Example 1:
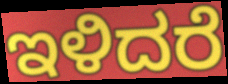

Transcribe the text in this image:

ಇಳಿದರೆ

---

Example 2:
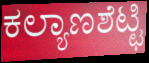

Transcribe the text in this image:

ಕಲ್ಯಾಣಶೆಟ್ಟಿ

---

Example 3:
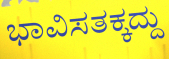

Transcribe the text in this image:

ಭಾವಿಸತಕ್ಕದ್ದು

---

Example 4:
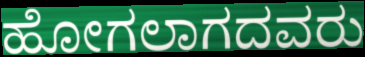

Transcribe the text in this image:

ಹೋಗಲಾಗದವರು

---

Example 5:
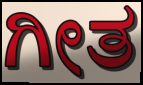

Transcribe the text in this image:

ಗೀತ